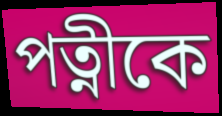
পত্নীকে